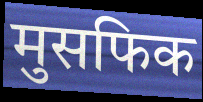
मुसफिक